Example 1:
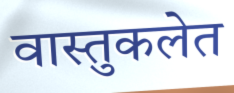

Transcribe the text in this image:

वास्तुकलेत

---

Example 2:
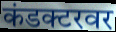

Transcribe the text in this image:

कंडक्टरवर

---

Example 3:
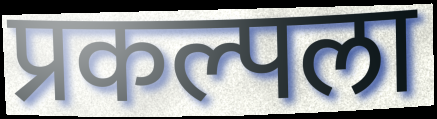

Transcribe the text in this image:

प्रकल्पला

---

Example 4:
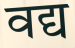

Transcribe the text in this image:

वद्य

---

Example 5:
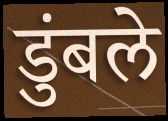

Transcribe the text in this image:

डुंबले